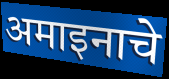
अमाइनाचे